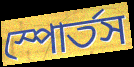
স্পোর্তস